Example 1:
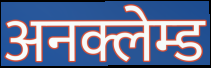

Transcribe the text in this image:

अनक्लेम्ड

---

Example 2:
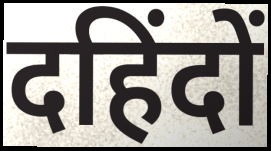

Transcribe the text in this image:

दहिंदों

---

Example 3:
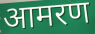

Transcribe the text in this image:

आमरण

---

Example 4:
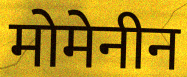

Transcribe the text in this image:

मोमेनीन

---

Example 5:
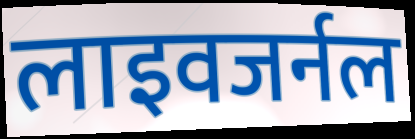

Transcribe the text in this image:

लाइवजर्नल